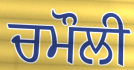
ਚਮੌਲੀ